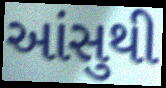
આંસુથી